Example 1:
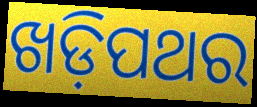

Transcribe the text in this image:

ଖଡ଼ିପଥର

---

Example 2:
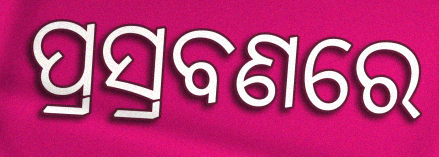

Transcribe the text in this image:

ପ୍ରସ୍ରବଣରେ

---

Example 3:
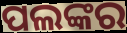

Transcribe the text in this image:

ପଲଙ୍କର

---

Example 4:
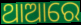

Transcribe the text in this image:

ଥାଆରେ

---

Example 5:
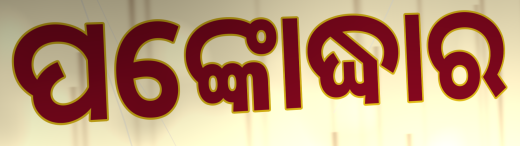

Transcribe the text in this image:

ପଙ୍କୋଦ୍ଧାର